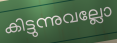
കിട്ടുന്നുവല്ലോ